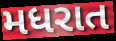
મધરાત